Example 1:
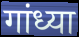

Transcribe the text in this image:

गांध्या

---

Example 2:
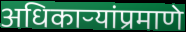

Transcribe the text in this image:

अधिकाऱ्यांप्रमाणे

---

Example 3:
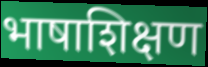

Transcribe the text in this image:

भाषाशिक्षण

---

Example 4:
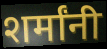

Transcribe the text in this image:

शर्मांनी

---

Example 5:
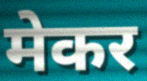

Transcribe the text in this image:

मेकर